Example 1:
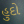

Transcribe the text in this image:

હુદો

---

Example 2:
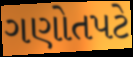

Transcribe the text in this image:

ગણોતપટે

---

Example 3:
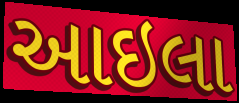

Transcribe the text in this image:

આઇલા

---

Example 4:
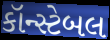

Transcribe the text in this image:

કૉન્સ્ટેબલ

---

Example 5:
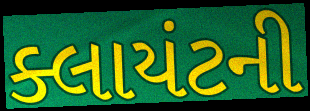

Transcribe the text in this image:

ક્લાયંટની